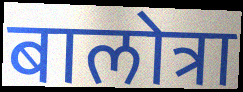
बालोत्रा